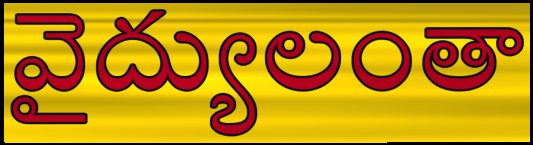
వైద్యులంతా